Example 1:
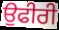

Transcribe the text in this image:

ਉਫੀਰੀ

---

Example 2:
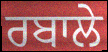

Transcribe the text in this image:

ਰਬਾਲੇ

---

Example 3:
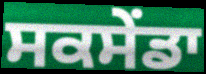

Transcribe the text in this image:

ਸਕਸੇਂਡਾ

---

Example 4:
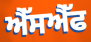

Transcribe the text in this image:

ਐੱਸਐੱਫ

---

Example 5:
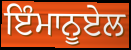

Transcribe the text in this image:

ਇੰਮਾਨੂਏਲ